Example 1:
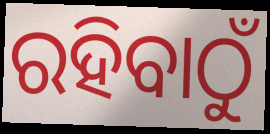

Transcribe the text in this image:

ରହିବାଠୁଁ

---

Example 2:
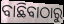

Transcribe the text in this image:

ବାଛିବାଠାରୁ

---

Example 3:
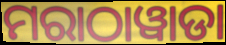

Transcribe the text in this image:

ମରାଠାୱାଡା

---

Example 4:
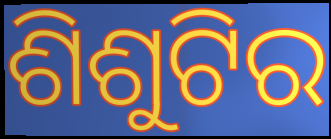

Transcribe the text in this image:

ଶିଶୁଟିର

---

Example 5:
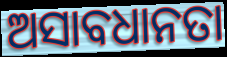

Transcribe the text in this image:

ଅସାବଧାନତା